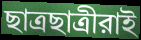
ছাত্রছাত্রীরাই